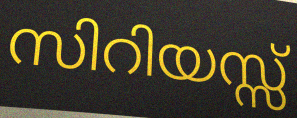
സിറിയസ്സ്